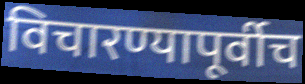
विचारण्यापूर्वीच